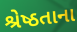
શ્રેષ્ઠતાના